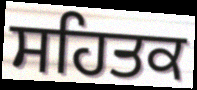
ਸਹਿਤਕ